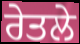
ਰੇਤਲੇ